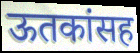
ऊतकांसह